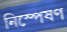
নিস্পেষণ